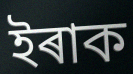
ইৰাক